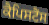
ਕੈਪਿਸਟੈਂਸ